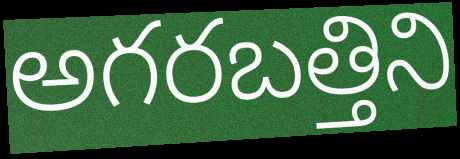
అగరబత్తిని